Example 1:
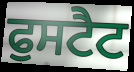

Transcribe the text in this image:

ਫੁਸਟੈਟ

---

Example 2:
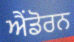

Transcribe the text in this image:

ਐਂਡੋਰਨ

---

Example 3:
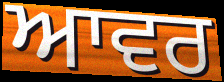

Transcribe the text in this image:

ਆਵਰ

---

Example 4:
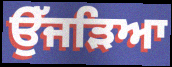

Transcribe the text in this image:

ਉੱਜੜਿਆ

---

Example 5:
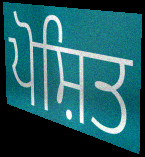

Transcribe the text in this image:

ਪੋਸ਼ਿਤ